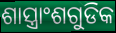
ଶାସ୍ତ୍ରାଂଶଗୁଡିକ